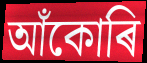
আঁকোৰি